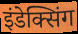
इंडेक्सिंग